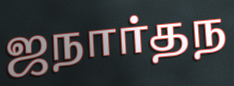
ஜநார்தந